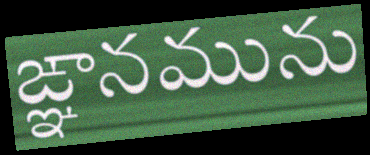
ఙ్ఞానమును